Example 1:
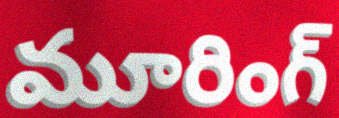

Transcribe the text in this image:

మూరింగ్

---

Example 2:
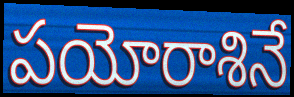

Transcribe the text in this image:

పయోరాశినే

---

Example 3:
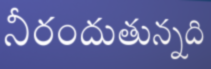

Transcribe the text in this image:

నీరందుతున్నది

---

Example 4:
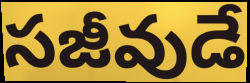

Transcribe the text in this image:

సజీవుడే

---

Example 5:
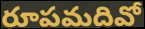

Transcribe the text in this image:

రూపమదివో